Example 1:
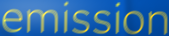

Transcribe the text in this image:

emission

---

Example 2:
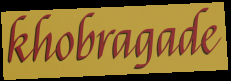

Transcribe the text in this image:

khobragade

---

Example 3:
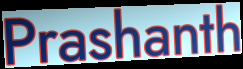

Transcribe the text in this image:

Prashanth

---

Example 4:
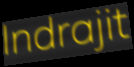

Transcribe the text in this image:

Indrajit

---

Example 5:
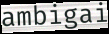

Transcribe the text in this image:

ambigai